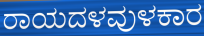
ರಾಯದಳವುಳಕಾರ